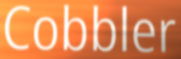
Cobbler